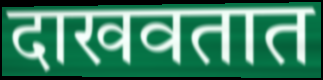
दाखवतात